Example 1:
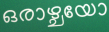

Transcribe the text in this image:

ഒരാഴ്ചയോ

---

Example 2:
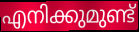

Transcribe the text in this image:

എനിക്കുമുണ്ട്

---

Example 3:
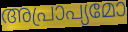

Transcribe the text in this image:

അപ്രാപ്യമോ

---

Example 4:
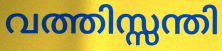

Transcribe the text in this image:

വത്തിസ്സന്തി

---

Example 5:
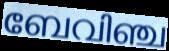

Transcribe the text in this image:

ബേവിഞ്ച